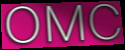
OMC